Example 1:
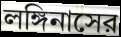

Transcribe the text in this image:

লঙ্গিনাসের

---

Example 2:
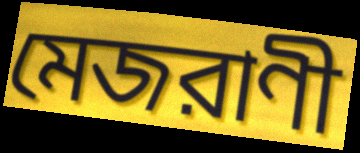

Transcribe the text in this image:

মেজরাণী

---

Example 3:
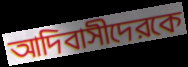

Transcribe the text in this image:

আদিবাসীদেরকে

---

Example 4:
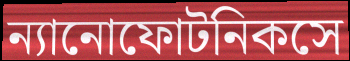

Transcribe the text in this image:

ন্যানোফোটনিকসে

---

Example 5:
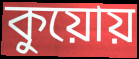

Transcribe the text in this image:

কুয়োয়